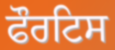
ਫੌਰਟਿਸ